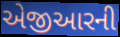
એજીઆરની